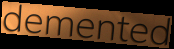
demented